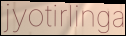
jyotirlinga